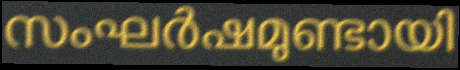
സംഘർഷമുണ്ടായി